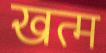
खत्‍म